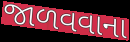
જાળવવાના